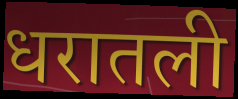
धरातली